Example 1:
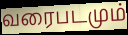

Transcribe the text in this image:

வரைபடமும்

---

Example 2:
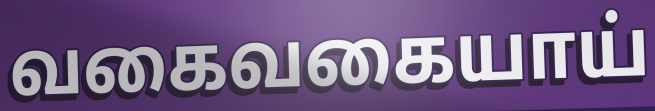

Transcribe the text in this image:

வகைவகையாய்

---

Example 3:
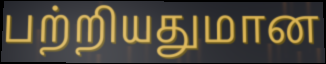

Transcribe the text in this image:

பற்றியதுமான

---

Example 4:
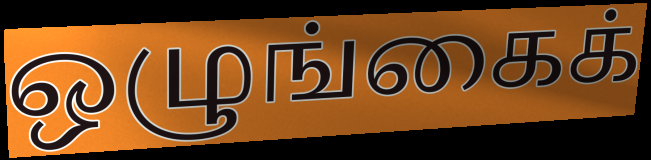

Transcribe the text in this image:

ஒழுங்கைக்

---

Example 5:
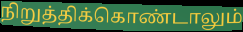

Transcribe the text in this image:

நிறுத்திக்கொண்டாலும்